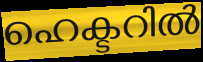
ഹെക്ടറിൽ